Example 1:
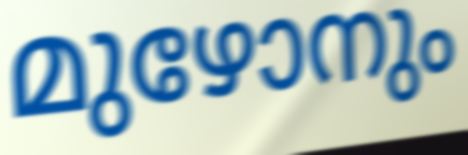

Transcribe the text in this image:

മുഴോനും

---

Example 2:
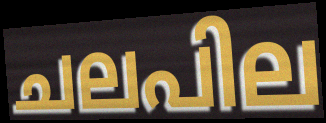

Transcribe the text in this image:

ചലപില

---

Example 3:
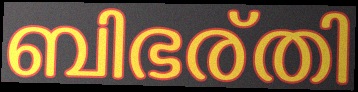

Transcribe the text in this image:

ബിഭര്തി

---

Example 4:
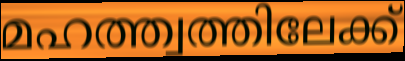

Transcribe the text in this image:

മഹത്ത്വത്തിലേക്ക്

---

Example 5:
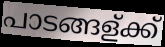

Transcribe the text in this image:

പാടങ്ങള്ക്ക്